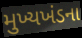
મુખ્યખંડના